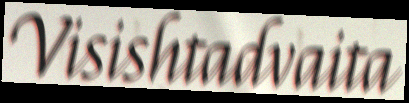
Visishtadvaita